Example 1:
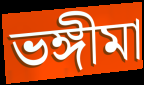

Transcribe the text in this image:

ভঙ্গীমা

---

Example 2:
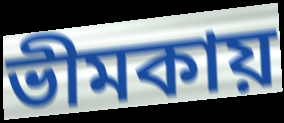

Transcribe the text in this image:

ভীমকায়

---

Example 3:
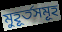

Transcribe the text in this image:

মুহূৰ্তসমূহ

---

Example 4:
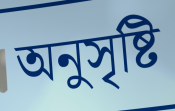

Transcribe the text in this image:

অনুসৃষ্টি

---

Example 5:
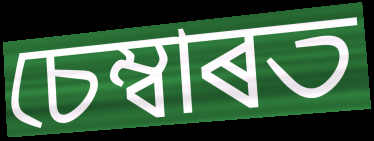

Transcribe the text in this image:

চেম্বাৰত